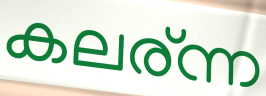
കലര്ന്ന